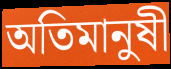
অতিমানুষী